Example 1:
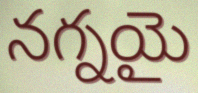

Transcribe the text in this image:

నగ్నయై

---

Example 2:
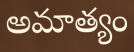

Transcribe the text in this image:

అమాత్యం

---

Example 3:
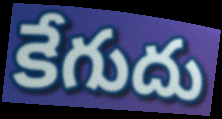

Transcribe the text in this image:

కేగుదు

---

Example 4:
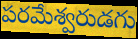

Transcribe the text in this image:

పరమేశ్వరుడగు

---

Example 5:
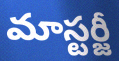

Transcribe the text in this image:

మాస్టర్జీ